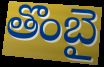
తొంబై